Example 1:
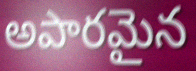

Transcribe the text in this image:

అపారమైన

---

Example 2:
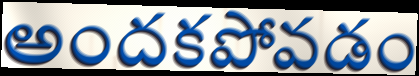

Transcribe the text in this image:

అందకపోవడం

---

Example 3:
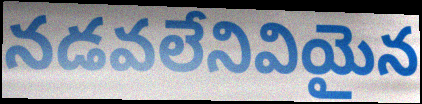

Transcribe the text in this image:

నడవలేనివియైన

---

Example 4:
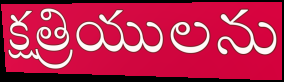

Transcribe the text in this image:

క్షత్రియులను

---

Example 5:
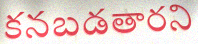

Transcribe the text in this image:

కనబడతారని